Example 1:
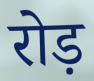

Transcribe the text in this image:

रोड़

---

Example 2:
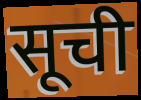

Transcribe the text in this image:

सूची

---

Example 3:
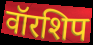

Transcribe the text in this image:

वॉरशिप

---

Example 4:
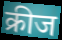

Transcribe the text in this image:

क्रीज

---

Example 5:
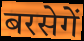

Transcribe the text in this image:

बरसेगें